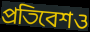
প্রতিবেশও